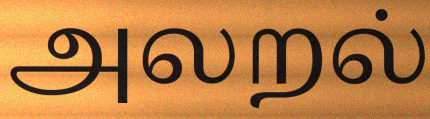
அலறல்